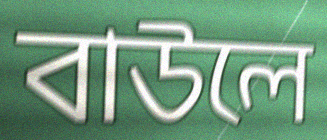
বাউলে